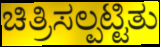
ಚಿತ್ರಿಸಲ್ಪಟ್ಟಿತು